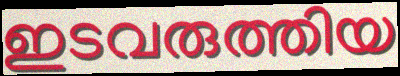
ഇടവരുത്തിയ